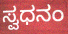
ಸ್ವಧನಂ